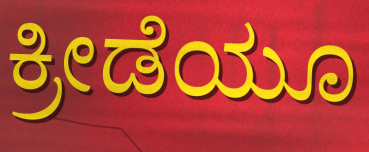
ಕ್ರೀಡೆಯೂ